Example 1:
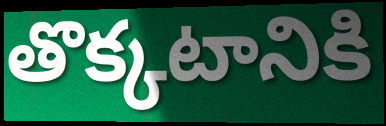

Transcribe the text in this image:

తొక్కటానికి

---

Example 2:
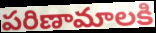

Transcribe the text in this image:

పరిణామాలకి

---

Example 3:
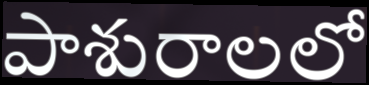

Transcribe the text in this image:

పాశురాలలో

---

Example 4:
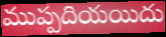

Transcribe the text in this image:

ముప్పదియయిదు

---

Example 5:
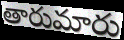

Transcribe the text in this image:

తారుమారు